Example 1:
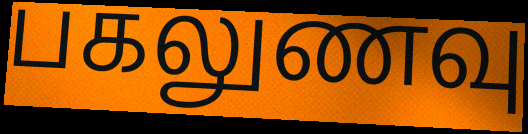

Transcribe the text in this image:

பகலுணவு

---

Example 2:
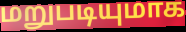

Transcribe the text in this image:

மறுபடியுமாக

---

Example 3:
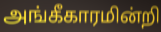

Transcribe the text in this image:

அங்கீகாரமின்றி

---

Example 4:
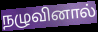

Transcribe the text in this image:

நழுவினால்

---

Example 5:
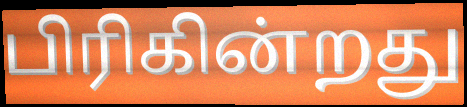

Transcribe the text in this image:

பிரிகின்றது